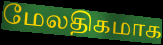
மேலதிகமாக